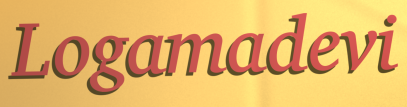
Logamadevi